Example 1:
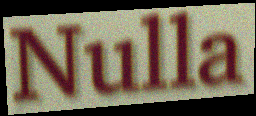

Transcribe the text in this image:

Nulla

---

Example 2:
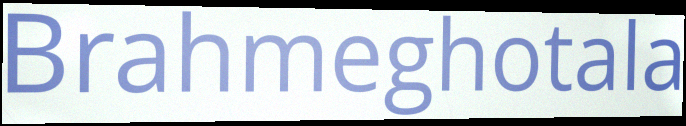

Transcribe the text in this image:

Brahmeghotala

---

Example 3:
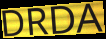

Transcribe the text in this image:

DRDA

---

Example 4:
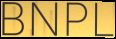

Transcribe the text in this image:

BNPL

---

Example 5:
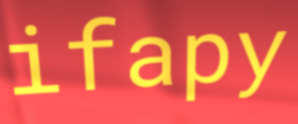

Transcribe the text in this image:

ifapy